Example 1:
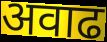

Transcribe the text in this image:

अवाढ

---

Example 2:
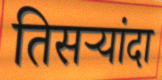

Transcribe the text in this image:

तिसऱ्यांदा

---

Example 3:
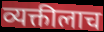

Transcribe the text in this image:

व्यक्तीलाच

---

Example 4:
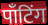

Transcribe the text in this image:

पाँटिंग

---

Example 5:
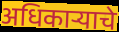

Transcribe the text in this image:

अधिकाऱ्याचे